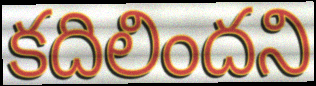
కదిలిందని